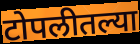
टोपलीतल्या